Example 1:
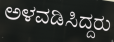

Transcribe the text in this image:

ಅಳವಡಿಸಿದ್ದರು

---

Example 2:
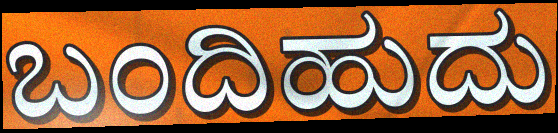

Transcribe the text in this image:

ಬಂದಿಹುದು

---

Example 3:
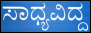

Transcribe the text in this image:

ಸಾಧ್ಯವಿದ್ದ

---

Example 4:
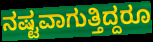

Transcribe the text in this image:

ನಷ್ಟವಾಗುತ್ತಿದ್ದರೂ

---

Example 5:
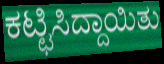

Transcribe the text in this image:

ಕಟ್ಟಿಸಿದ್ದಾಯಿತು